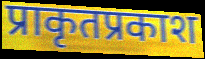
प्राकृतप्रकाश